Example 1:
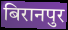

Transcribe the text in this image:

बिरानपुर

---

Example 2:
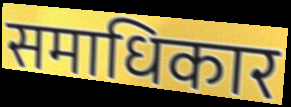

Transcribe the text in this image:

समाधिकार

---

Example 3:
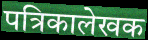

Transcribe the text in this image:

पत्रिकालेखक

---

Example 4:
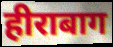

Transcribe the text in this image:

हीराबाग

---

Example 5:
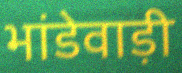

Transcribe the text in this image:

भांडेवाड़ी